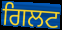
ਗਿਲਟ